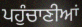
ਪਹੁੰਚਾਣੀਆਂ